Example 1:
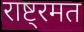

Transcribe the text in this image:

राष्ट्रमत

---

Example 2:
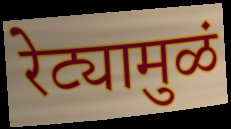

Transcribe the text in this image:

रेट्यामुळं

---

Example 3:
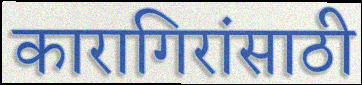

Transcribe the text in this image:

कारागिरांसाठी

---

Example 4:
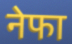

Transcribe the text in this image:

नेफा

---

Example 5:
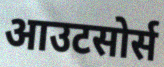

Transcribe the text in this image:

आउटसोर्स